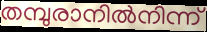
തമ്പുരാനിൽനിന്ന്